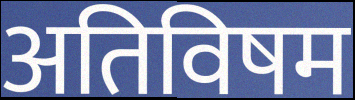
अतिविषम